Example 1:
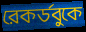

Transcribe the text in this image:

রেকর্ডবুকে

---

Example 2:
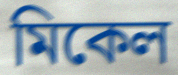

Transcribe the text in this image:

মিকেল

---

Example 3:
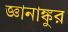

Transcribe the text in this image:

জ্ঞানাঙ্কুর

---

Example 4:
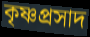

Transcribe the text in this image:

কৃষ্ণপ্রসাদ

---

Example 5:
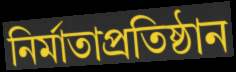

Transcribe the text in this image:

নির্মাতাপ্রতিষ্ঠান